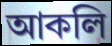
আকলি